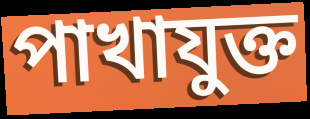
পাখাযুক্ত